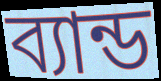
ব্যান্ড